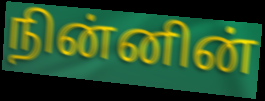
நின்னின்